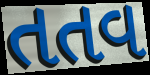
તતવ